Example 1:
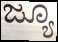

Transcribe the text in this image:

ಜ್ಯೂ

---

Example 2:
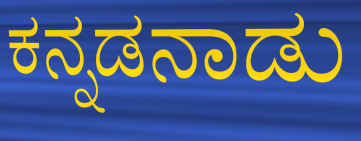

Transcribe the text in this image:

ಕನ್ನಡನಾಡು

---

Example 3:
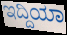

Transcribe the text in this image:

ಇದ್ದಿಯಾ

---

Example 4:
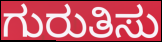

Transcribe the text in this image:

ಗುರುತಿಸು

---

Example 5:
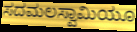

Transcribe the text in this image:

ಸದಮಲಸ್ವಾಮಿಯೂ